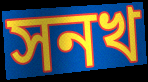
সনখ